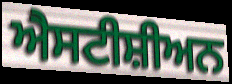
ਐਸਟੀਸ਼ੀਅਨ